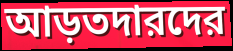
আড়তদারদের